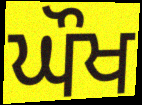
ਘੌਖ